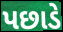
પછાડે